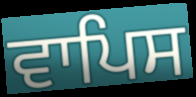
ਵਾਪਿਸ